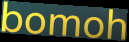
bomoh